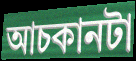
আচকানটা